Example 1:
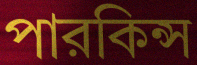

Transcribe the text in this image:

পারকিন্স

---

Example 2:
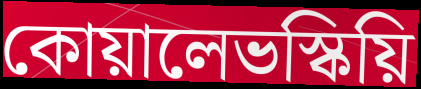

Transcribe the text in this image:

কোয়ালেভস্কিয়ি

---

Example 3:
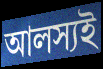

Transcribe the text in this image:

আলস্যই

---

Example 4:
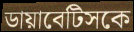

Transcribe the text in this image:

ডায়াবেটিসকে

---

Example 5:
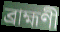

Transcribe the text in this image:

ব্রাহ্মণী